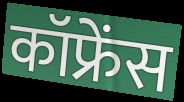
कॉफ्रेंस